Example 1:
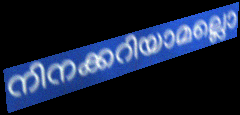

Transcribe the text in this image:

നിനക്കറിയാമല്ലൊ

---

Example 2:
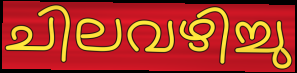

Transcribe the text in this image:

ചിലവഴിച്ചു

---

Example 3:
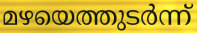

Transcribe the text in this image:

മഴയെത്തുടർന്ന്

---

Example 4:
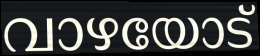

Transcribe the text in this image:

വാഴയോട്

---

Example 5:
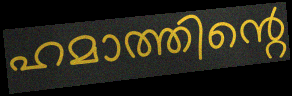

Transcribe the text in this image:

ഹമാത്തിന്റെ